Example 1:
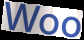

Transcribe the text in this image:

Woo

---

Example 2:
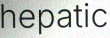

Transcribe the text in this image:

hepatic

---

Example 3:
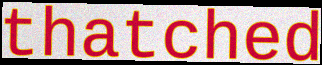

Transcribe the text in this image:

thatched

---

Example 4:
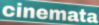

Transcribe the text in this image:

cinemata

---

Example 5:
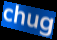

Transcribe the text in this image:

chug